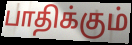
பாதிக்கும்